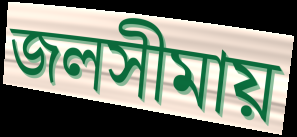
জলসীমায়